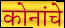
कोनांचे